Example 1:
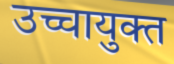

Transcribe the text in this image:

उच्चायुक्त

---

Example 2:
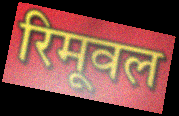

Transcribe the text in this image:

रिमूवल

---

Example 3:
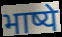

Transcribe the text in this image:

भाष्ये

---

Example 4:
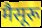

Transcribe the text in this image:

मैसूरू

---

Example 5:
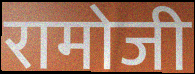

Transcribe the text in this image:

रामोजी